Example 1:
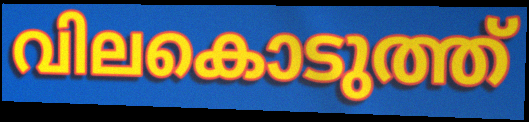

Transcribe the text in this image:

വിലകൊടുത്ത്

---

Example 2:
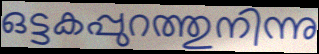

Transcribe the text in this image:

ഒട്ടകപ്പുറത്തുനിന്നു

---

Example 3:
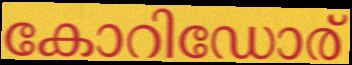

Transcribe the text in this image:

കോറിഡോര്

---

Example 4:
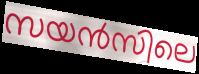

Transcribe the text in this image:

സയൻസിലെ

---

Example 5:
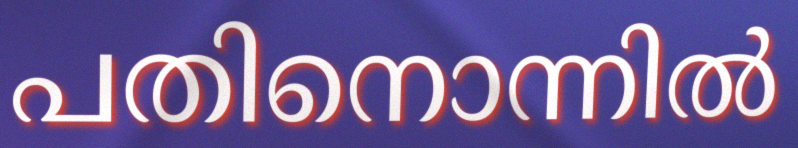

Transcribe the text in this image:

പതിനൊന്നിൽ